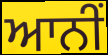
ਆਨੀਂ